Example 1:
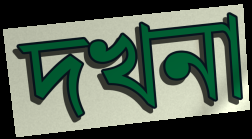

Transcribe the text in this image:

দখনা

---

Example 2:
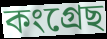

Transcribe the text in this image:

কংগ্ৰেছ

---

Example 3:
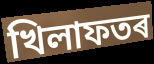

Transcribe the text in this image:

খিলাফতৰ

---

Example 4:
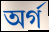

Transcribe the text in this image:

অৰ্গ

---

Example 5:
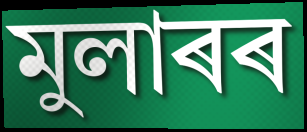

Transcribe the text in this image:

মুলাৰৰ